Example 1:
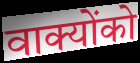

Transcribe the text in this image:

वाक्योंको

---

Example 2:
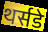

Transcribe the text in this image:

थर्सडे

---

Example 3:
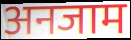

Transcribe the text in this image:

अनजाम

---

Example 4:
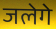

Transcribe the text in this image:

जलेगे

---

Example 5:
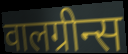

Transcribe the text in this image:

वालग्रीन्स